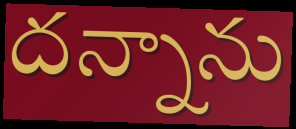
దన్నాను